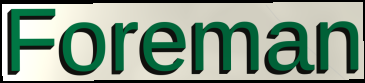
Foreman